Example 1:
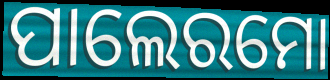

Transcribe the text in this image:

ପାଲେରମୋ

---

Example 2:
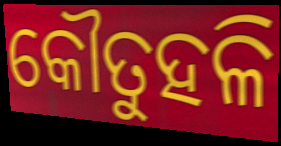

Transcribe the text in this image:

କୌତୁହଳି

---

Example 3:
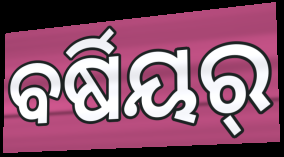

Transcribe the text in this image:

ବର୍ଷିୟର୍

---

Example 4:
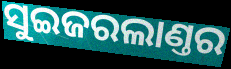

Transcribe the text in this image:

ସୁଇଜରଲାଣ୍ତର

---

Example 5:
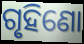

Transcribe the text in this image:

ଗୃହିଣୋ